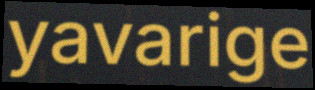
yavarige